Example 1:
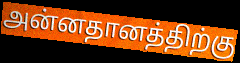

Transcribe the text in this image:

அன்னதானத்திற்கு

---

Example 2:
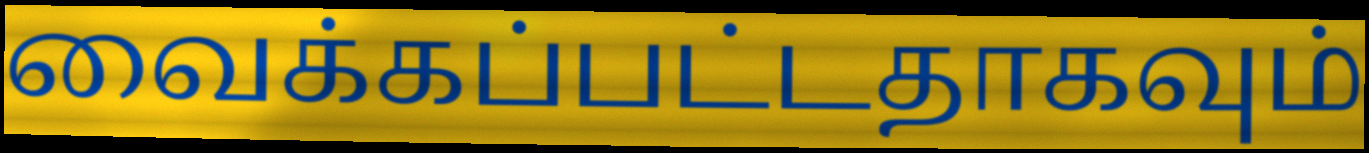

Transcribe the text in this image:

வைக்கப்பட்டதாகவும்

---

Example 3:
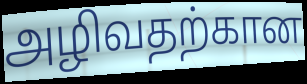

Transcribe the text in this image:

அழிவதற்கான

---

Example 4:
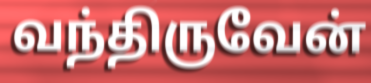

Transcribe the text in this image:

வந்திருவேன்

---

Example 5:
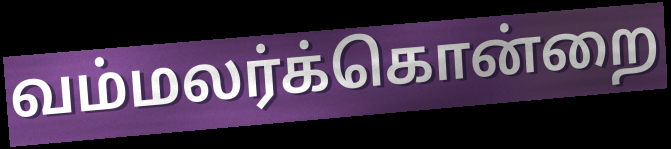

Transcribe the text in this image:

வம்மலர்க்கொன்றை